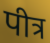
पीत्र